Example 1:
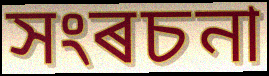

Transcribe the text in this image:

সংৰচনা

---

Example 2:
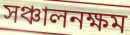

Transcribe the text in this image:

সঞ্চালনক্ষম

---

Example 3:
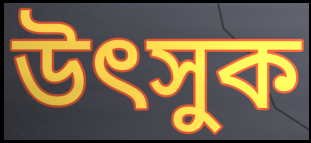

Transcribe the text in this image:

উৎসুক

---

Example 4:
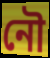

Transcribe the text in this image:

নৌ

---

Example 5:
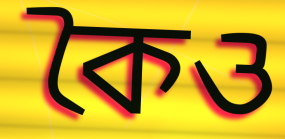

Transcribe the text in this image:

কৈও